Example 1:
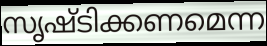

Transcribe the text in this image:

സൃഷ്ടിക്കണമെന്ന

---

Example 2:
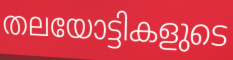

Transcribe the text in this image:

തലയോട്ടികളുടെ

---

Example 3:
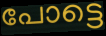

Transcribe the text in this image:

പോട്ടെ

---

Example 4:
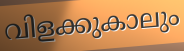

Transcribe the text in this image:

വിളക്കുകാലും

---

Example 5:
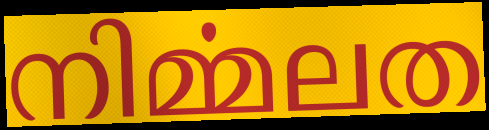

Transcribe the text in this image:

നിൎമ്മലത